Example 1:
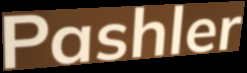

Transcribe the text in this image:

Pashler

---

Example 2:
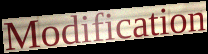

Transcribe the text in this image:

Modification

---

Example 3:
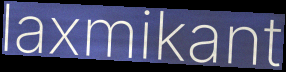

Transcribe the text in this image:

laxmikant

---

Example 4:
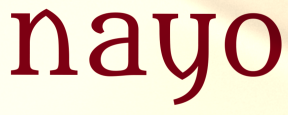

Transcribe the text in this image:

nayo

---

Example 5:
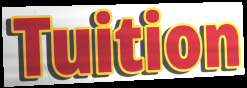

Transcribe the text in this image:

Tuition